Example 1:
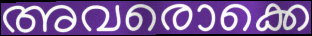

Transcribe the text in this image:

അവരൊക്കെ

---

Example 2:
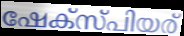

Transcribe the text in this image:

ഷേക്സ്പിയര്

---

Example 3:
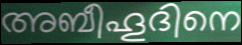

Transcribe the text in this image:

അബീഹൂദിനെ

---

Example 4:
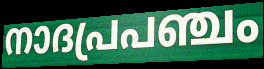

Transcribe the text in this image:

നാദപ്രപഞ്ചം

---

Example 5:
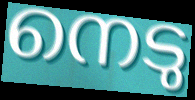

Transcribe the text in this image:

നെടു